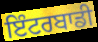
ਇੰਟਰਬਾਡੀ